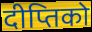
दीप्तिको